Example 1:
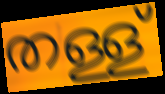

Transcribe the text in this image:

തള്ള്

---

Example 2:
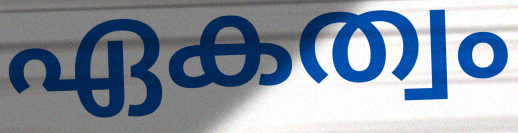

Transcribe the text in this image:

ഏകത്വം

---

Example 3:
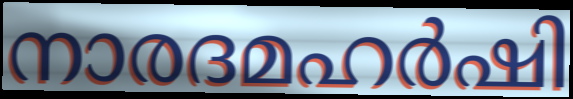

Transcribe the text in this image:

നാരദമഹർഷി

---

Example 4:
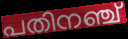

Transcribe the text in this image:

പതിനഞ്ച്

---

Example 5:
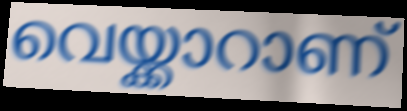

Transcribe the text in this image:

വെയ്ക്കാറാണ്